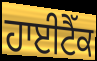
ਹਾਈਟੈੱਕ